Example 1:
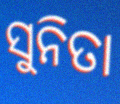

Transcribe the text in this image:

ସୁନିତା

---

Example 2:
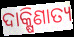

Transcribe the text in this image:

ଦାକ୍ଷିଣାତ୍ୟ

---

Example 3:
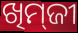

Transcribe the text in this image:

ଖିମ୍‌ଜୀ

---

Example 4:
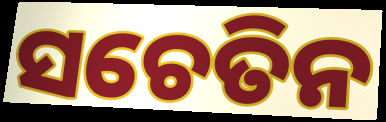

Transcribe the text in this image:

ସଚେତିନ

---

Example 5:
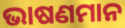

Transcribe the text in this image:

ଭାଷଣମାନ